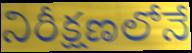
నిరీక్షణలోనే